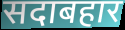
सदाबहार